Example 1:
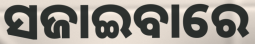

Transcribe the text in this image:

ସଜାଇବାରେ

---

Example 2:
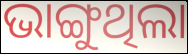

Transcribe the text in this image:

ଭାଙ୍ଗୁଥିଲା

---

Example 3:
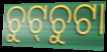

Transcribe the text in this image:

ଚୁଟ୍‌ଚୁଟା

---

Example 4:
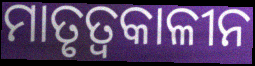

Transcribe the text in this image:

ମାତୃତ୍ୱକାଳୀନ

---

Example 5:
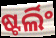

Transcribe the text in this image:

ଷ୍ଟର୍ଲିଂ